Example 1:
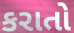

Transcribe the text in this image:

કરાતો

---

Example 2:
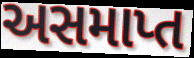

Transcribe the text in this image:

અસમાપ્ત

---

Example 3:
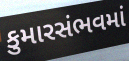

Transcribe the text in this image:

કુમારસંભવમાં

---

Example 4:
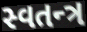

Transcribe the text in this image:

સ્વતન્ત્ર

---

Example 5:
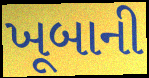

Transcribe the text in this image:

ખૂબાની